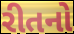
રીતનો